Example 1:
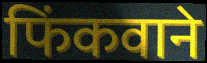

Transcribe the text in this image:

फिंकवाने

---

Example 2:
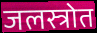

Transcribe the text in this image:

जलस्त्रोत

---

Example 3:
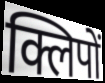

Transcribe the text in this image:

क्लिपों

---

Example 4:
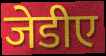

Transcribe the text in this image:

जेडीए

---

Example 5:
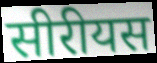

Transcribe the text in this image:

सीरीयस